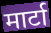
मार्टा